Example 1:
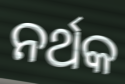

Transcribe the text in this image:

ନର୍ଥକ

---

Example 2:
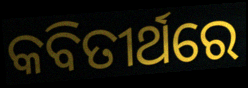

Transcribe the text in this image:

କବିତୀର୍ଥରେ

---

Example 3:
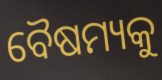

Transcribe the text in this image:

ବୈଷମ୍ୟକୁ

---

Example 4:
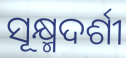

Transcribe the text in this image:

ସୂକ୍ଷ୍ମଦର୍ଶୀ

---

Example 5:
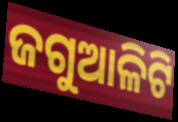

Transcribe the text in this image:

ଜଗୁଆଳିଟି